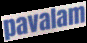
pavalam